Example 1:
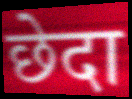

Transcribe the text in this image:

छेदा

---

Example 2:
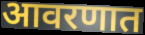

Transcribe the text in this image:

आवरणात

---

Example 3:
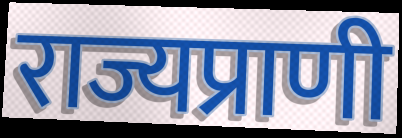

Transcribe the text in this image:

राज्यप्राणी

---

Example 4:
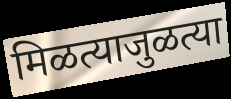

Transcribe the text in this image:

मिळत्याजुळत्या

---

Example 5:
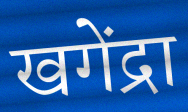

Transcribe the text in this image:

खगेंद्रा